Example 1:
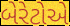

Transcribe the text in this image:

બેરેટોએ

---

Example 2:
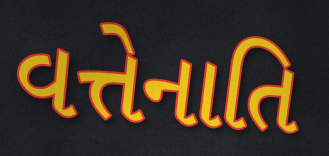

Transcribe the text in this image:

વત્તેનાતિ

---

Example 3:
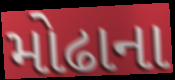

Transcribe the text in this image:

મોઢાના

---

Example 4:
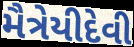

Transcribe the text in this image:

મૈત્રેયીદેવી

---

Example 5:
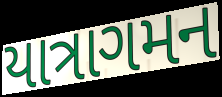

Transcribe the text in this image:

યાત્રાગમન